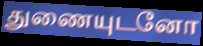
துணையுடனோ